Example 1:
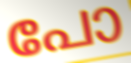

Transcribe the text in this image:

പോ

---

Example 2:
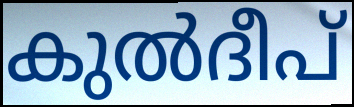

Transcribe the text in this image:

കുൽദീപ്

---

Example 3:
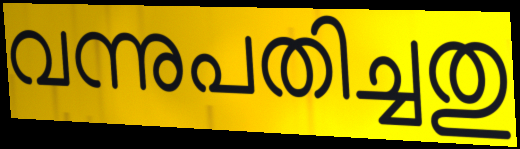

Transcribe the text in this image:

വന്നുപതിച്ചതു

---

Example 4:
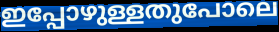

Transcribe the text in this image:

ഇപ്പോഴുള്ളതുപോലെ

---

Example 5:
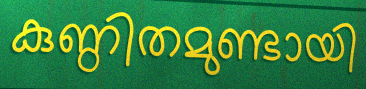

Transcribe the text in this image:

കുണ്ഠിതമുണ്ടായി